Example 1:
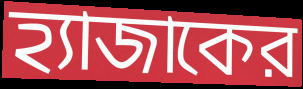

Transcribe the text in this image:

হ্যাজাকের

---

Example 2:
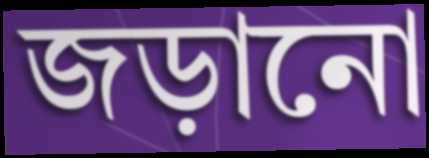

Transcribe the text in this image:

জড়ানো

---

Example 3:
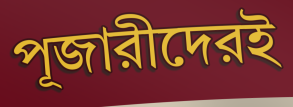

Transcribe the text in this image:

পূজারীদেরই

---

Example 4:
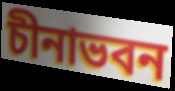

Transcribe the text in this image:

চীনাভবন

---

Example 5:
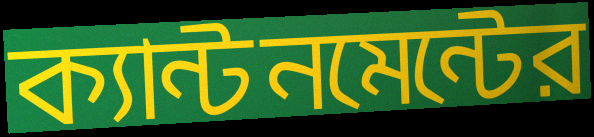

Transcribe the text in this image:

ক্যান্টনমেন্টের